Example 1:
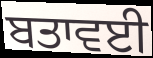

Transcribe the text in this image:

ਬਤਾਵਈ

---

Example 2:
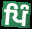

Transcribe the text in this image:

ਪਿੰ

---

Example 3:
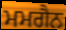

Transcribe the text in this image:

ਮਮਗੈਨ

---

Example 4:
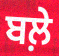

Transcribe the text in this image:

ਬਲ਼ੇ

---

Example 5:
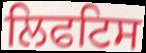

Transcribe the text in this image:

ਲਿਫਟਿਸ